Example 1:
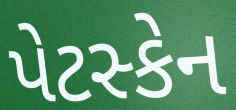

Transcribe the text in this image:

પેટસ્કેન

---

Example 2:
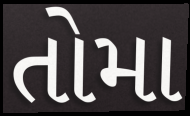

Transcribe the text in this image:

તોમા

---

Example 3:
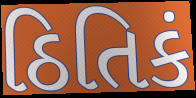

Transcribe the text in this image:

ઠિતિકં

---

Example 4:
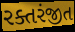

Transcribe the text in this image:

રક્તરંજીત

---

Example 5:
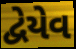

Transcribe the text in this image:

દ્વેયેવ